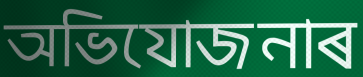
অভিযোজনাৰ